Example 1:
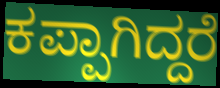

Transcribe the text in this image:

ಕಪ್ಪಾಗಿದ್ದರೆ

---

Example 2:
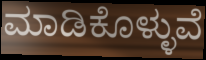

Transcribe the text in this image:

ಮಾಡಿಕೊಳ್ಳುವೆ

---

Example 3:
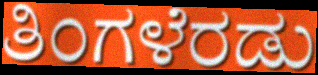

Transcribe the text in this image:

ತಿಂಗಳೆರಡು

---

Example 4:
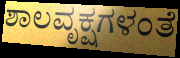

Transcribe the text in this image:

ಶಾಲವೃಕ್ಷಗಳಂತೆ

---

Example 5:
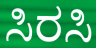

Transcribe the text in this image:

ಸಿರಸಿ